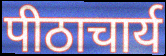
पीठाचार्य